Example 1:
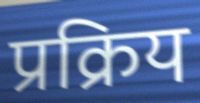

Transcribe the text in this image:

प्रक्रिय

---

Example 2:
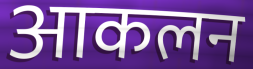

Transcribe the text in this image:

आकलन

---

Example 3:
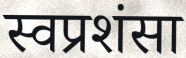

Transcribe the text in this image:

स्वप्रशंसा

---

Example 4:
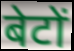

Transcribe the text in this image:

बेटों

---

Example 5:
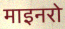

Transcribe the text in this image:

माइनरो